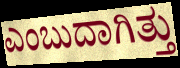
ಎಂಬುದಾಗಿತ್ತು